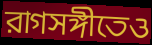
রাগসঙ্গীতেও